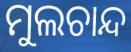
ମୁଲଚାନ୍ଦ